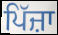
ਪਿੱਜ਼ਾ